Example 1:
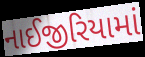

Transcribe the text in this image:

નાઈજીરિયામાં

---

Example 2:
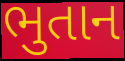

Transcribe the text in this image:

ભુતાન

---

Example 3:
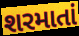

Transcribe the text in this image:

શરમાતાં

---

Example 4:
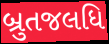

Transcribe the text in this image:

બ્રુતજલધિ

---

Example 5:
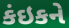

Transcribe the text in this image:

કંઇકને